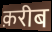
क़रीब